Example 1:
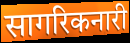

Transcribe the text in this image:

सागरिकनारी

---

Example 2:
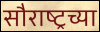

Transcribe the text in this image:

सौराष्ट्रच्या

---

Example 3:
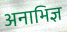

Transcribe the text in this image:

अनाभिज्ञ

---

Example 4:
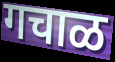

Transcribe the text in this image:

गचाळ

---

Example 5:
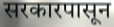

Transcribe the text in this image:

सरकारपासून